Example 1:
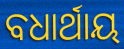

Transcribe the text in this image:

ବଧାର୍ଥାୟ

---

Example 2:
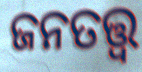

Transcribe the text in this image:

ଜନତତ୍ତ୍ୱ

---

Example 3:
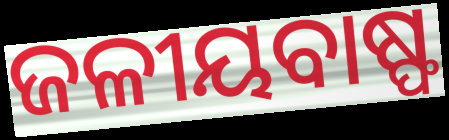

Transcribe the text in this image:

ଜଳୀୟବାଷ୍ଫ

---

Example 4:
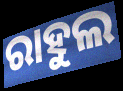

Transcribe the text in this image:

ରାହୁଲ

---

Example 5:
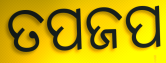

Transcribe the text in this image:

ତପଜପ